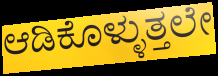
ಆಡಿಕೊಳ್ಳುತ್ತಲೇ